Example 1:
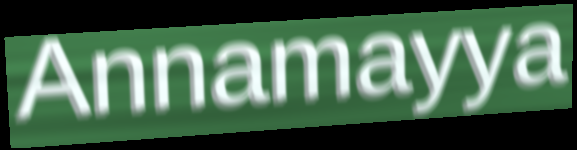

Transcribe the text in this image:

Annamayya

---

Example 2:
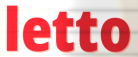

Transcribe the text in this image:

letto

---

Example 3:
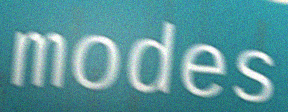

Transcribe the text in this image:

modes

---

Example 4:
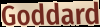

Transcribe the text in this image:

Goddard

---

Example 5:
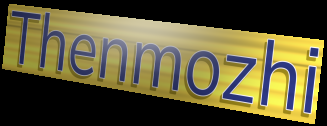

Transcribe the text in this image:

Thenmozhi